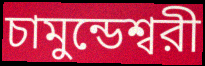
চামুন্ডেশ্বরী